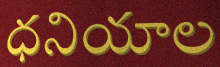
ధనియాల